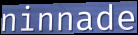
ninnade